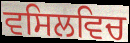
ਵਸਿਲਵਿਚ